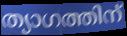
ത്യാഗത്തിന്